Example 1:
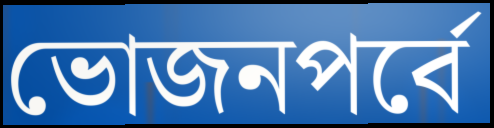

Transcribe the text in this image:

ভোজনপর্বে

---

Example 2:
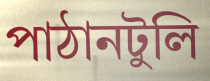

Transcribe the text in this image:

পাঠানটুলি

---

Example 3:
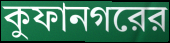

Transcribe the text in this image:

কুফানগরের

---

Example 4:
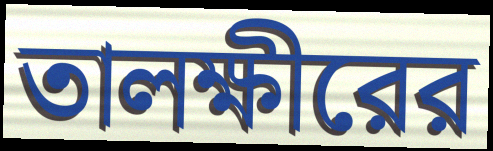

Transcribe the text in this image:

তালক্ষীরের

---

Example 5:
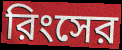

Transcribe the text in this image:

রিংসের